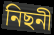
নিছনী